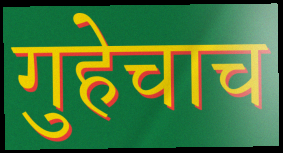
गुहेचाच